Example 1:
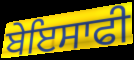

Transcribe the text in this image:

ਬੇਇਸਾਫੀ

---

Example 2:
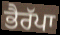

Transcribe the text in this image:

ਭੈਰੱਪਾ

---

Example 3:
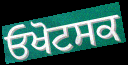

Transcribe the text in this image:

ਓਖੋਟਸਕ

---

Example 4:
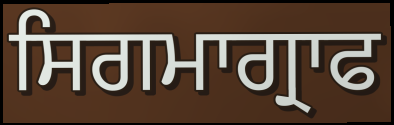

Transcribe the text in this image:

ਸਿਗਮਾਗ੍ਰਾਫ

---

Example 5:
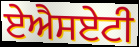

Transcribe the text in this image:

ਏਐਸਏਟੀ